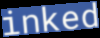
inked